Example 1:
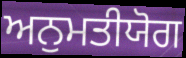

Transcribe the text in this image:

ਅਨੁਮਤੀਯੋਗ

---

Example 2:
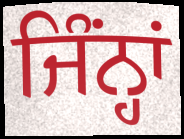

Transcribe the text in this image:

ਜਿੰਂਨ੍ਹਾਂ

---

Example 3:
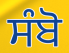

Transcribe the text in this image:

ਸੰਬੋ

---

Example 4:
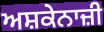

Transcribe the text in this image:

ਅਸ਼ਕੇਨਾਜ਼ੀ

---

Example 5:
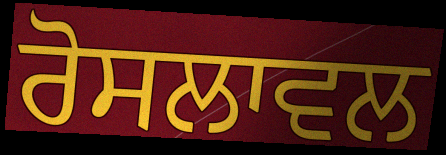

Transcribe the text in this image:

ਰੋਸਲਾਵਲ